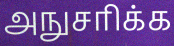
அநுசரிக்க